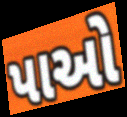
પાઓ